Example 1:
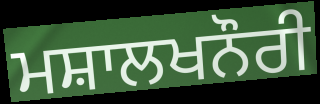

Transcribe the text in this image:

ਮਸ਼ਾਲਖਨੌਰੀ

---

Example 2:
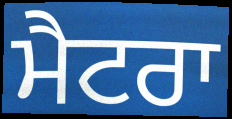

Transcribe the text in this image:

ਮੈਟਰਾ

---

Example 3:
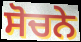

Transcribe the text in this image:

ਸੋਚਨੇ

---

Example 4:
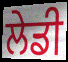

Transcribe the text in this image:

ਲੇਡੀ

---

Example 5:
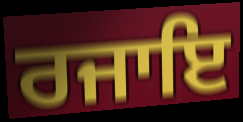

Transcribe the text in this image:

ਰਜਾਇ